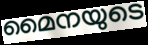
മൈനയുടെ